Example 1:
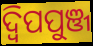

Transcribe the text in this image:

ଦ୍ଵିପପୁଞ୍ଜ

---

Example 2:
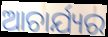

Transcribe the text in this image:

ଆଚାର୍ଯ୍ୟର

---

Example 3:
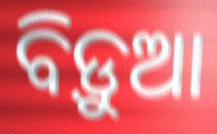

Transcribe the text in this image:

ବିଡ଼ୁଆ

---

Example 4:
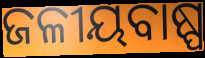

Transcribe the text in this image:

ଜଳୀୟବାଷ୍ପ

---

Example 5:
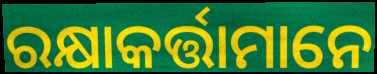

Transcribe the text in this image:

ରକ୍ଷାକର୍ତ୍ତାମାନେ